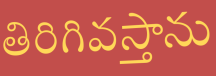
తిరిగివస్తాను